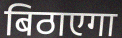
बिठाएगा